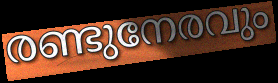
രണ്ടുനേരവും